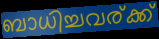
ബാധിച്ചവര്ക്ക്